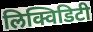
लिक्विडिटी